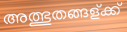
അത്ഭുതങ്ങള്ക്ക്